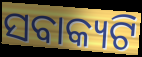
ସବାକ୍ୟଟି